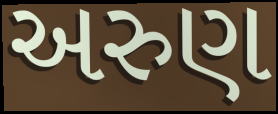
અરુણ